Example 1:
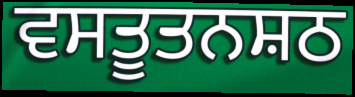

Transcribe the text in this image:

ਵਸਤੂਤਨਸ਼ਠ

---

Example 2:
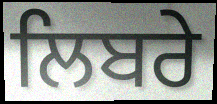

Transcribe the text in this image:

ਲਿਬਰੇ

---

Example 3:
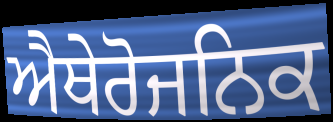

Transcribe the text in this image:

ਐਥੇਰੋਜਨਿਕ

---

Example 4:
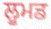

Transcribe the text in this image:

ਲੂਮਡ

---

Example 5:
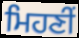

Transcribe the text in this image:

ਮਿਹਣੀਂ